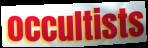
occultists